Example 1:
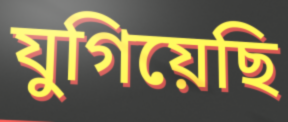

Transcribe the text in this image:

যুগিয়েছি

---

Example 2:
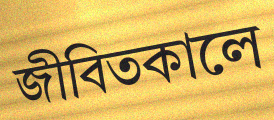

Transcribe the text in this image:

জীবিতকালে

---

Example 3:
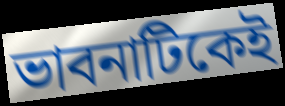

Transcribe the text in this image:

ভাবনাটিকেই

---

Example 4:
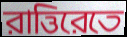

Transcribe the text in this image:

রাত্তিরেতে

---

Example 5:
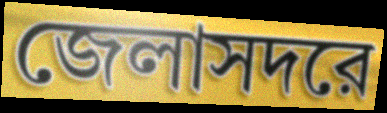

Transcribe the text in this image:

জেলাসদরে